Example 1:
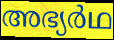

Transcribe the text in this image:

അഭ്യർഥ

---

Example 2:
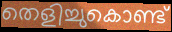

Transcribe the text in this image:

തെളിച്ചുകൊണ്ട്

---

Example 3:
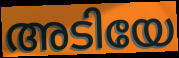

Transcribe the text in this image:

അടിയേ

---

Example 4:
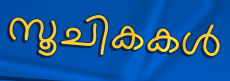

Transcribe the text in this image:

സൂചികകൾ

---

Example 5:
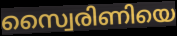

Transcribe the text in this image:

സ്വൈരിണിയെ